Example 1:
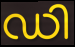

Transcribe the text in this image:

ഡി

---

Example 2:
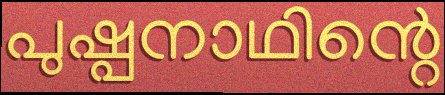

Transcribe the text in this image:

പുഷ്പനാഥിന്റെ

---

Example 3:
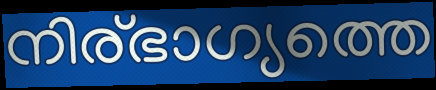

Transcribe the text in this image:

നിര്ഭാഗ്യത്തെ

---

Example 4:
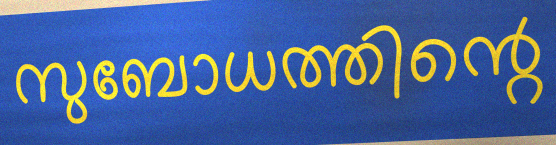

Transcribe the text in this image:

സുബോധത്തിന്റെ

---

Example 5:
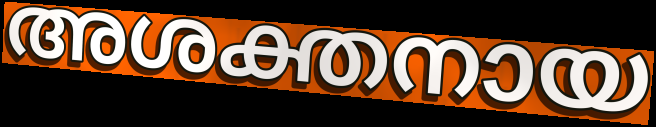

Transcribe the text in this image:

അശക്തനായ